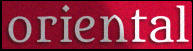
oriental